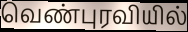
வெண்புரவியில்